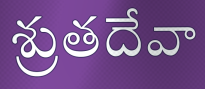
శ్రుతదేవా